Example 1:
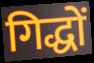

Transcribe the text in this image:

गिद्धों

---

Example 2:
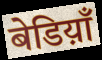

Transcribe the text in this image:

बेडिय़ाँ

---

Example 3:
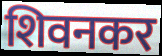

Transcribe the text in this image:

शिवनकर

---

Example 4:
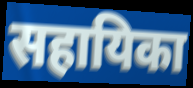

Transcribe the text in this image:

सहायिका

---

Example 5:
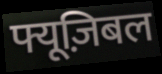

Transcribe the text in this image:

फ्यूज़िबल